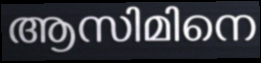
ആസിമിനെ